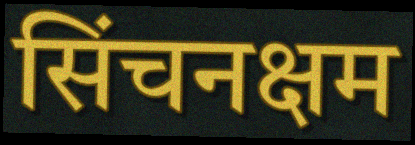
सिंचनक्षम